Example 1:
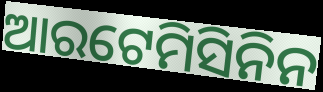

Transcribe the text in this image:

ଆରଟେମିସିନିନ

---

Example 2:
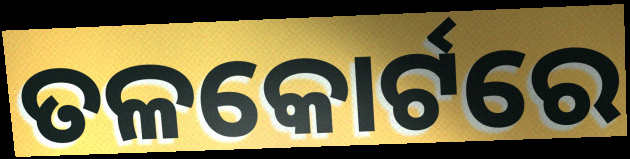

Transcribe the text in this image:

ତଳକୋର୍ଟରେ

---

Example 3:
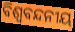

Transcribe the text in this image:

ବିଶ୍ୱବନ୍ଦନୀୟ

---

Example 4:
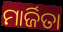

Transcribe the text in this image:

ମାର୍ଜିତା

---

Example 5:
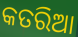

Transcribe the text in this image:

କତରିଆ